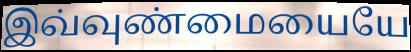
இவ்வுண்மையையே